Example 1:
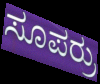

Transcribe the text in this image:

ಸೂಪರ್ರು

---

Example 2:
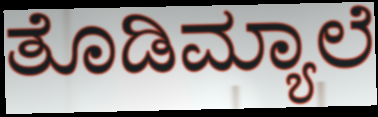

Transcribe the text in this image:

ತೊಡಿಮ್ಯಾಲೆ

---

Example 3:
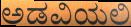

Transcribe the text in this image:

ಅಡವಿಯಲಿ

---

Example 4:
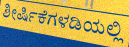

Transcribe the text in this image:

ಶೀರ್ಷಿಕೆಗಳಡಿಯಲ್ಲಿ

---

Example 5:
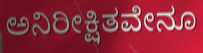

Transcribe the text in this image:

ಅನಿರೀಕ್ಷಿತವೇನೂ